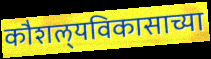
कौशल्यविकासाच्या